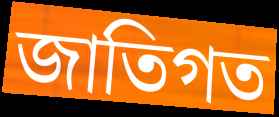
জাতিগত